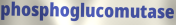
phosphoglucomutase